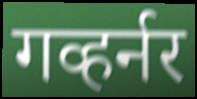
गव्हर्नर